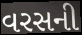
વરસની